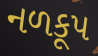
નળકૂપ